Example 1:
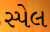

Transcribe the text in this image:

સ્પેલ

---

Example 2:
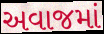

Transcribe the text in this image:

અવાજમાં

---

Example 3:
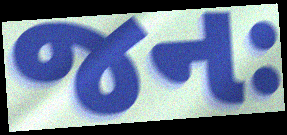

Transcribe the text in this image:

જનઃ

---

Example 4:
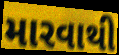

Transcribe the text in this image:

મારવાથી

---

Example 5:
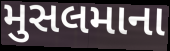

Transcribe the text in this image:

મુસલમાના